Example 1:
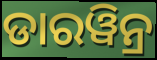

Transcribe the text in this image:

ଡାରୱିନ୍ର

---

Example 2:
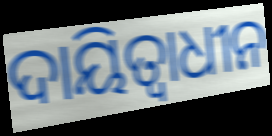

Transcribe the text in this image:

ଦାୟିତ୍ୱାଧୀନ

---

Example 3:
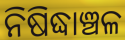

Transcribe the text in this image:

ନିଷିଦ୍ଧାଞ୍ଚଳ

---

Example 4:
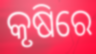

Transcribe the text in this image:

କୃଷିରେ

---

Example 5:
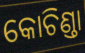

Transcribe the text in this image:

କୋଚିଣ୍ଡା